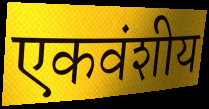
एकवंशीय